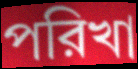
পরিখা